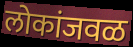
लोकांजवळ